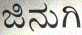
ಜಿನುಗಿ